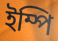
ইম্পি